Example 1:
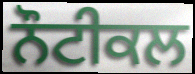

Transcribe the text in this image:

ਨੌਟੀਕਲ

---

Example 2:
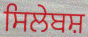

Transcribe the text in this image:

ਸਿਲੇਬਸ਼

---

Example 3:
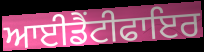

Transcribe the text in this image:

ਆਈਡੈਂਟੀਫਾਇਰ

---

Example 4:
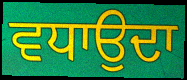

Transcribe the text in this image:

ਵਧਾਉਦਾ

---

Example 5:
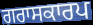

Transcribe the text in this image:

ਗਰਾਸਕਾਰਪ